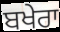
ਬਖੇਰਾ